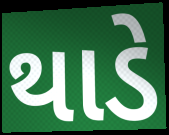
થાડે